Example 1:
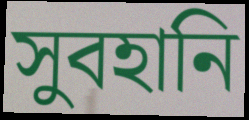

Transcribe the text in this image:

সুবহানি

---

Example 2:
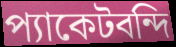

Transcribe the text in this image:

প্যাকেটবন্দি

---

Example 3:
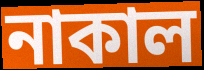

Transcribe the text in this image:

নাকাল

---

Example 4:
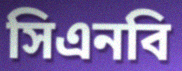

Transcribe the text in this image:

সিএনবি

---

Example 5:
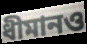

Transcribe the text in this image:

ধীমানও